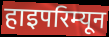
हाइपरिम्यून